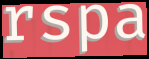
rspa